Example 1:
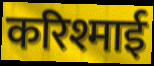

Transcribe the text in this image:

करिश्माई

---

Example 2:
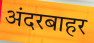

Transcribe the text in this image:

अंदरबाहर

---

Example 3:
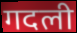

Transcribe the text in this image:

गदली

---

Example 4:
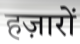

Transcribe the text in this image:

हज़ारों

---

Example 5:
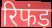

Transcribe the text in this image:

रिफंड